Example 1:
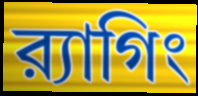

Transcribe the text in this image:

র‍্যাগিং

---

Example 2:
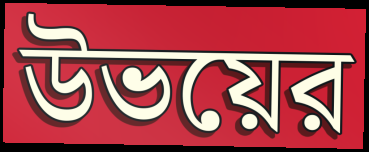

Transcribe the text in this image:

উভয়ের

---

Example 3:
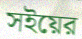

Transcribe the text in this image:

সইয়ের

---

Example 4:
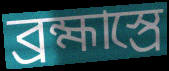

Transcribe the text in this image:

ব্রহ্মাস্ত্রে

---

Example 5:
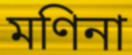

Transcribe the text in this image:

মণিনা